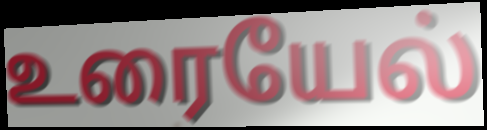
உரையேல்